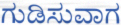
ಗುಡಿಸುವಾಗ